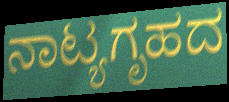
ನಾಟ್ಯಗೃಹದ